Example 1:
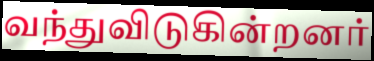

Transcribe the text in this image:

வந்துவிடுகின்றனர்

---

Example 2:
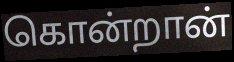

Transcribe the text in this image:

கொன்றான்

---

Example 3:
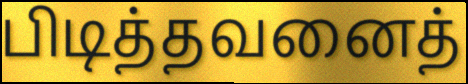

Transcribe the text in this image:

பிடித்தவனைத்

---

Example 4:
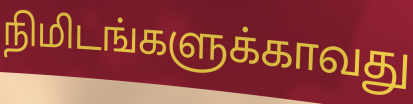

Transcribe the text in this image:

நிமிடங்களுக்காவது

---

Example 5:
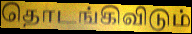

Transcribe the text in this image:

தொடங்கிவிடும்